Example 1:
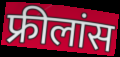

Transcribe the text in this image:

फ्रीलांस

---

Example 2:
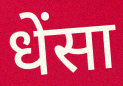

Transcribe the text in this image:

धेंसा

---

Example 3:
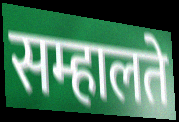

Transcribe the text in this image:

सम्हालते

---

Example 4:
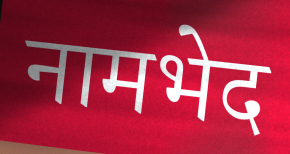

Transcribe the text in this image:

नामभेद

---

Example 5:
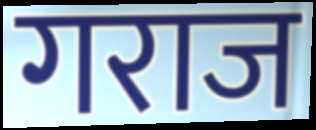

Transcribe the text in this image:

गराज